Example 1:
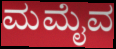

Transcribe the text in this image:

ಮಮೈವ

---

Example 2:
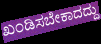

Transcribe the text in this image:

ಖಂಡಿಸಬೇಕಾದದ್ದು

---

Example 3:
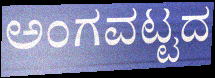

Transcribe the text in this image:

ಅಂಗವಟ್ಟದ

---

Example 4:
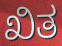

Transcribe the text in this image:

ಖಿತ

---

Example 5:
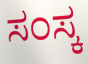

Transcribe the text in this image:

ಸಂಸ್ಕ